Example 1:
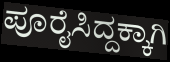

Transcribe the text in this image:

ಪೂರೈಸಿದ್ದಕ್ಕಾಗಿ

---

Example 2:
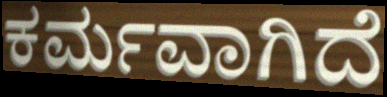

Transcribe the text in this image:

ಕರ್ಮವಾಗಿದೆ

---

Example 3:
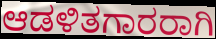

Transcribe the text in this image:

ಆಡಳಿತಗಾರರಾಗಿ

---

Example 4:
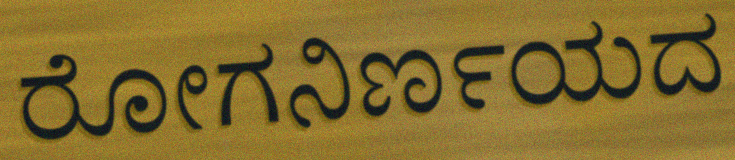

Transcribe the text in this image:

ರೋಗನಿರ್ಣಯದ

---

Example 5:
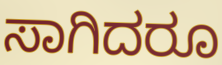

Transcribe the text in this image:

ಸಾಗಿದರೂ